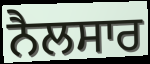
ਨੈਲਸਾਰ